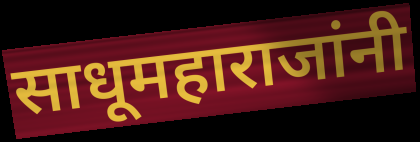
साधूमहाराजांनी